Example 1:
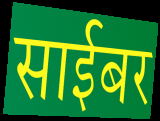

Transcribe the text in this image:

साईबर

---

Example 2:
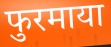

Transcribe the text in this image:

फुरमाया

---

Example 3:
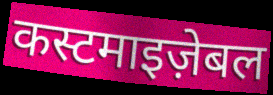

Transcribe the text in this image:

कस्टमाइज़ेबल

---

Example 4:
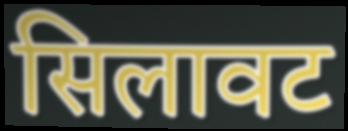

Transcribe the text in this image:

सिलावट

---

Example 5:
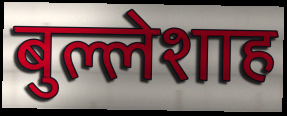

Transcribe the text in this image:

बुल्लेशाह